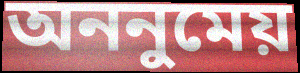
অননুমেয়